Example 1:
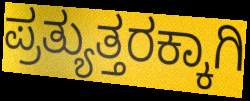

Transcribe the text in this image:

ಪ್ರತ್ಯುತ್ತರಕ್ಕಾಗಿ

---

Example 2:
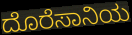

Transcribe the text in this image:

ದೊರೆಸಾನಿಯ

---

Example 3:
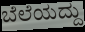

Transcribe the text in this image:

ಬೆಲೆಯದ್ದು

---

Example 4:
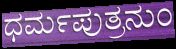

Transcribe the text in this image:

ಧರ್ಮಪುತ್ರನುಂ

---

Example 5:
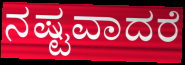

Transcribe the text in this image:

ನಷ್ಟವಾದರೆ